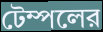
টেম্পলের